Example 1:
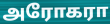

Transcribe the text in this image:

அரோகரா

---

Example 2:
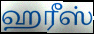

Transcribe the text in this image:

ஹரீஸ்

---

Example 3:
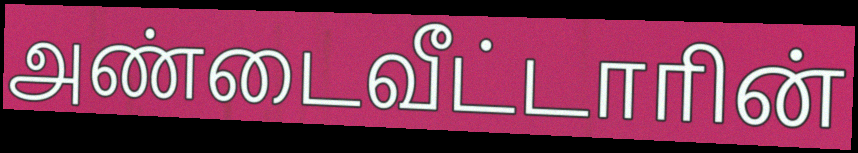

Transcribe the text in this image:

அண்டைவீட்டாரின்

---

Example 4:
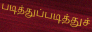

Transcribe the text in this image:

படித்துப்படித்துச்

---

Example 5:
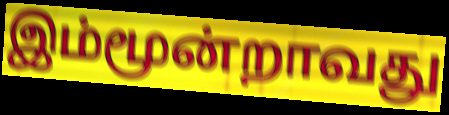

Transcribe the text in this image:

இம்மூன்றாவது